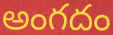
అంగదం